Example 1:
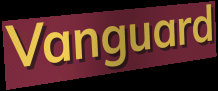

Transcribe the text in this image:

Vanguard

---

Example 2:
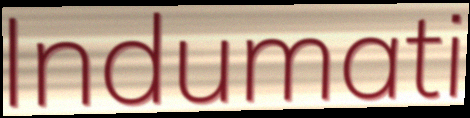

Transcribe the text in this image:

Indumati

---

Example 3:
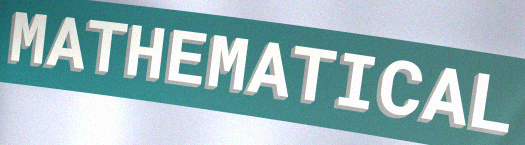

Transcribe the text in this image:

MATHEMATICAL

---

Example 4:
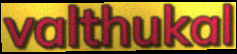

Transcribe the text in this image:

valthukal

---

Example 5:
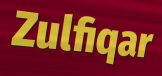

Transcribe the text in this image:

Zulfiqar